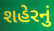
શહેરનું